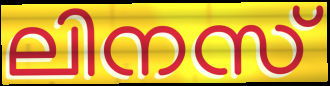
ലിനസ്